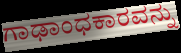
ಗಾಢಾಂಧಕಾರವನ್ನು